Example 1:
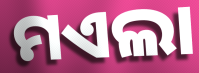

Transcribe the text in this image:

ମଏଲା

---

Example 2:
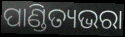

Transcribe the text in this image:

ପାଣ୍ଡିତ୍ୟଭରା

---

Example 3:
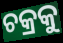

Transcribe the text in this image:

ଚକ୍ରକୁ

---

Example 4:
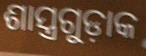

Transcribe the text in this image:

ଶାସ୍ତ୍ରଗୁଡ଼ାକ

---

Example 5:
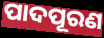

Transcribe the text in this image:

ପାଦପୂରଣ